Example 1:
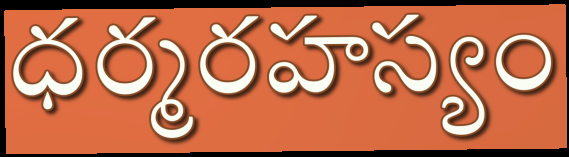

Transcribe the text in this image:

ధర్మరహస్యం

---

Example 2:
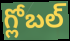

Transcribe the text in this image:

గ్లోబల్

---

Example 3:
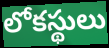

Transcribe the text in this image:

లోకస్థులు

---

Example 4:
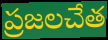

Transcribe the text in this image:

ప్రజలచేత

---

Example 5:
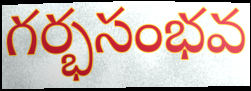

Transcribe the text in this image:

గర్భసంభవ